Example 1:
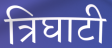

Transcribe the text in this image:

त्रिघाटी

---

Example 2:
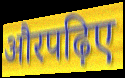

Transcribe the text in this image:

औरपढ़िए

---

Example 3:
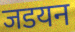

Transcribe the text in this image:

जडयन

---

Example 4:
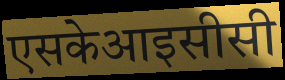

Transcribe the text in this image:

एसकेआइसीसी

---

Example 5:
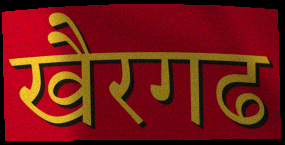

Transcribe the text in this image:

खैरगढ